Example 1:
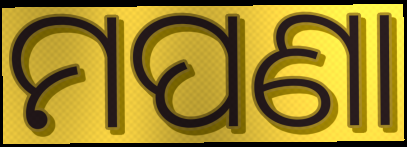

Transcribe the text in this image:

ମପଣା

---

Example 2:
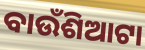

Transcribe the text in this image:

ବାଉଁଶିଆଟା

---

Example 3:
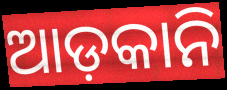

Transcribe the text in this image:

ଆଡ଼କାନି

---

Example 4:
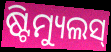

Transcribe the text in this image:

ଷ୍ଟିମ୍ୟୁଲସ୍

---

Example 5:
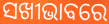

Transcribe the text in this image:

ସଖୀଭାବରେ